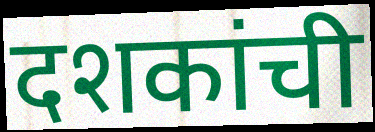
दशकांची